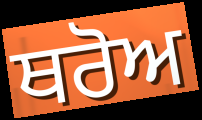
ਥਰੋਅ